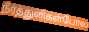
நீர்த்துளிகள்போல